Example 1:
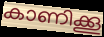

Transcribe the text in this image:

കാണിക്കൂ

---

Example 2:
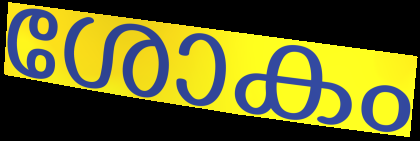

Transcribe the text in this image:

ശോകം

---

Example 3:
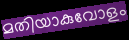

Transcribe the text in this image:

മതിയാകുവോളം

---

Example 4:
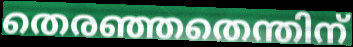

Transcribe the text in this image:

തെരഞ്ഞതെന്തിന്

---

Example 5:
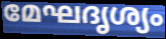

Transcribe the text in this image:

മേഘദൃശ്യം